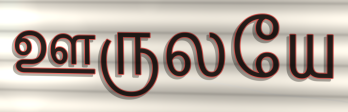
ஊருலயே